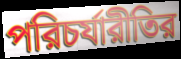
পরিচর্যারীতির